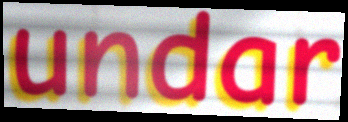
undar